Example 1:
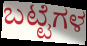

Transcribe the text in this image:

ಬಟ್ಟೆಗಳ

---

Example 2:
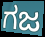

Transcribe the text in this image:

ಗಜ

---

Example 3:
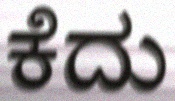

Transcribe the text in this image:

ಕೆದು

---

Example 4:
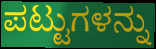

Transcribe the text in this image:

ಪಟ್ಟುಗಳನ್ನು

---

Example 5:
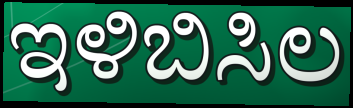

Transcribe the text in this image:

ಇಳಿಬಿಸಿಲ